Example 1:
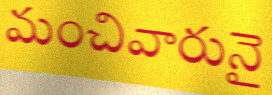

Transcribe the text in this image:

మంచివారునై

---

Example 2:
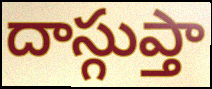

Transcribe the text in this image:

దాస్గుప్తా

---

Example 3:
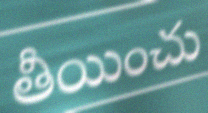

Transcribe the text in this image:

తీయించు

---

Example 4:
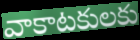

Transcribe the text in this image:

వాకాటకులకు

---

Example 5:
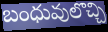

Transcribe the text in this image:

బంధువులొచ్చి